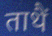
ताथैं